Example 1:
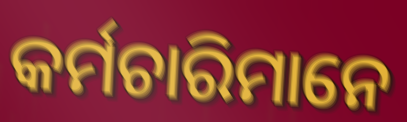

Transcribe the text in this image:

କର୍ମଚାରିମାନେ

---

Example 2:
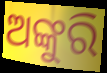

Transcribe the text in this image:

ଅଙ୍କୁରି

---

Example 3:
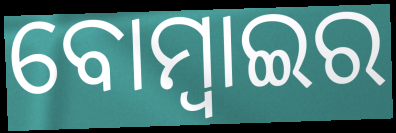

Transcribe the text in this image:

ବୋମ୍ବାଇର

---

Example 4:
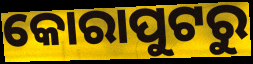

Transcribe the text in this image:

କୋରାପୁଟରୁ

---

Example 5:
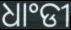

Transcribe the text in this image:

ଧାଂଡୀ